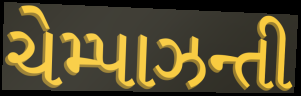
ચેમ્પાઝન્તી